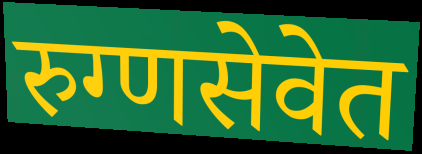
रुग्णसेवेत